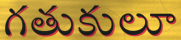
గతుకులూ